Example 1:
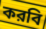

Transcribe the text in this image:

করবি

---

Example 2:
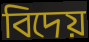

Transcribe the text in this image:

বিদেয়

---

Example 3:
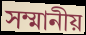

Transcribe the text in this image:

সম্মানীয়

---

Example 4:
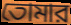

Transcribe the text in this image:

তোমার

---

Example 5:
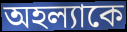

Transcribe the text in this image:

অহল্যাকে